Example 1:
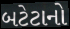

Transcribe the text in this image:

બટેટાનો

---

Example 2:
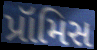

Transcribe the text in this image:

પ્રૉમિસ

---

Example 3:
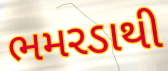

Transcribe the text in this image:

ભમરડાથી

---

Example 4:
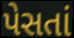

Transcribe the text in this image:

પેસતાં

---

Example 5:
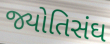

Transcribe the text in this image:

જ્યોતિસંઘ